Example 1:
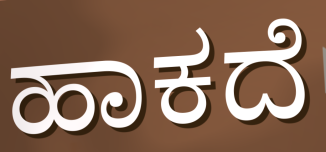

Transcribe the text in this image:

ಹಾಕದೆ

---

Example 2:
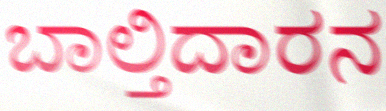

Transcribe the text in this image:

ಬಾಲ್ತಿದಾರನ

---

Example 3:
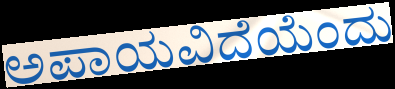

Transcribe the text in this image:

ಅಪಾಯವಿದೆಯೆಂದು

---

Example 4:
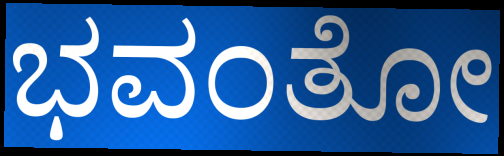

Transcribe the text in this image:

ಭವಂತೋ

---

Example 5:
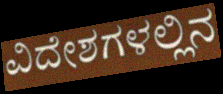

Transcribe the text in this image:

ವಿದೇಶಗಳಲ್ಲಿನ